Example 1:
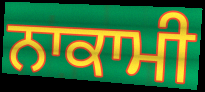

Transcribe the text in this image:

ਨਾਕਾਮੀ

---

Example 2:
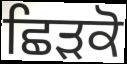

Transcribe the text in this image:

ਛਿੜਕੋ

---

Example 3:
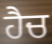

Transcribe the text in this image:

ਹੈਚ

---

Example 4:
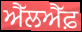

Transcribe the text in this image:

ਐੱਲਐੱਫ਼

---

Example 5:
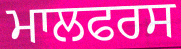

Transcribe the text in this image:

ਮਾਲਫਰਸ